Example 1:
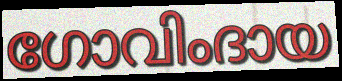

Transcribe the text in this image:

ഗോവിംദായ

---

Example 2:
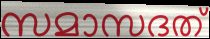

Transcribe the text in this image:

സമാസദത്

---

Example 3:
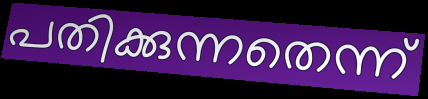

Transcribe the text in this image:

പതിക്കുന്നതെന്ന്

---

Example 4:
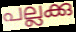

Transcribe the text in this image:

പല്ലക്കു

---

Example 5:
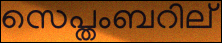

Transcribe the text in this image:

സെപ്തംബറില്